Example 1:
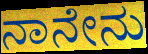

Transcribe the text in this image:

ನಾನೇನು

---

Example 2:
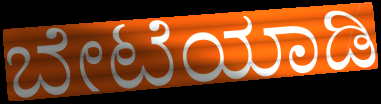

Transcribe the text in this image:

ಬೇಟೆಯಾಡಿ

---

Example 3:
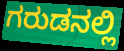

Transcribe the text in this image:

ಗರುಡನಲ್ಲಿ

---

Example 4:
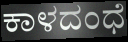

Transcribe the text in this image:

ಕಾಳದಂಧೆ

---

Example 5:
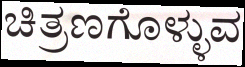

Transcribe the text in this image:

ಚಿತ್ರಣಗೊಳ್ಳುವ